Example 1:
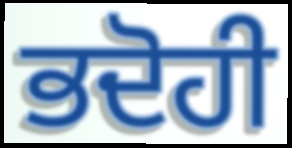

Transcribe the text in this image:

ਭਦੋਹੀ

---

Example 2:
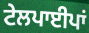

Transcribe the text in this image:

ਟੇਲਪਾਈਪਾਂ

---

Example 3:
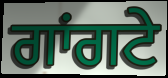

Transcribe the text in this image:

ਗਾਂਗਟੇ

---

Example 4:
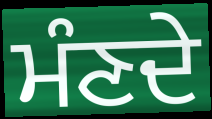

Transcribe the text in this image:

ਮੰਣਦੇ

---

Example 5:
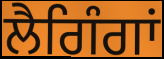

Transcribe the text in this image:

ਲੈਗਿੰਗਾਂ